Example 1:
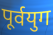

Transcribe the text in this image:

पूर्वयुग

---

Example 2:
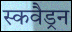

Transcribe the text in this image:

स्कवैड्रन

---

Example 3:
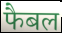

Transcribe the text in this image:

फैबल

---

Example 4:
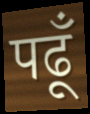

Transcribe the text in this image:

पढूँ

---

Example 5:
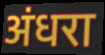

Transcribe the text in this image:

अंधरा